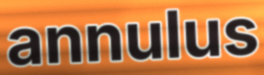
annulus